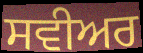
ਸਵੀਅਰ